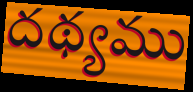
దథ్యము